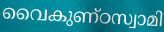
വൈകുണ്ഠസ്വാമി